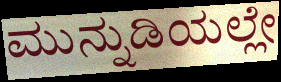
ಮುನ್ನುಡಿಯಲ್ಲೇ